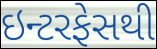
ઇન્ટરફેસથી